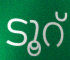
ടൂറ്